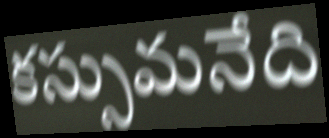
కస్సుమనేది